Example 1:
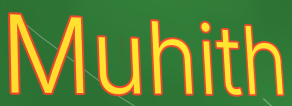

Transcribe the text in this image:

Muhith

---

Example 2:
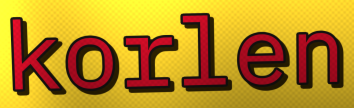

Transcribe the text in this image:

korlen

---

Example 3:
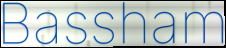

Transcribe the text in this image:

Bassham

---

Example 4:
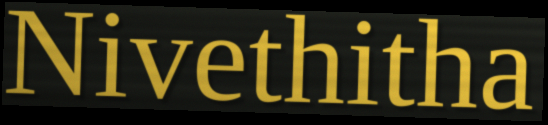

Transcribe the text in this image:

Nivethitha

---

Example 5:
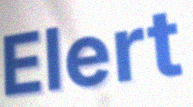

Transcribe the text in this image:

Elert